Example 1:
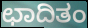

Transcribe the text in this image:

ಛಾದಿತಂ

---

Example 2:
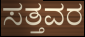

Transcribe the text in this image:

ಸತ್ತವರ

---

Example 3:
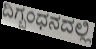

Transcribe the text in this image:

ದಿಗ್ಬಂಧನದಲ್ಲಿ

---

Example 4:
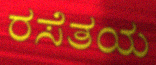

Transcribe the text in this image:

ರಸೆತಯ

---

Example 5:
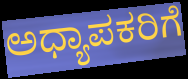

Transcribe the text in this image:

ಅಧ್ಯಾಪಕರಿಗೆ